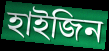
হাইজিন